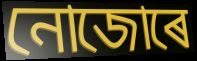
নোজোৰে